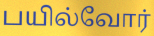
பயில்வோர்